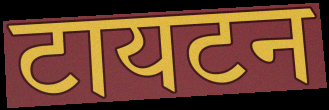
टायटन